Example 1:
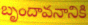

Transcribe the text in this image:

బృందావనానికి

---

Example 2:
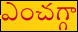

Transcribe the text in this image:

ఎంచగ్గా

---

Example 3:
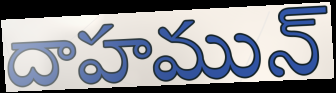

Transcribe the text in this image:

దాహమున్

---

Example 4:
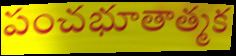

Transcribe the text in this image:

పంచభూతాత్మక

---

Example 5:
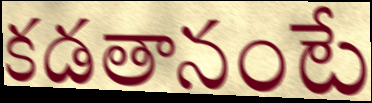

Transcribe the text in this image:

కడతానంటే